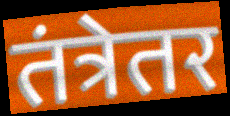
तंत्रेतर